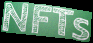
NFTs